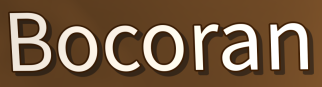
Bocoran